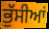
ਭੁੱਸੀਆਂ